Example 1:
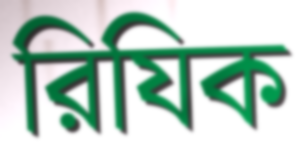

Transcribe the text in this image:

রিযিক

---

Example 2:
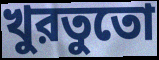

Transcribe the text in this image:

খুরতুতো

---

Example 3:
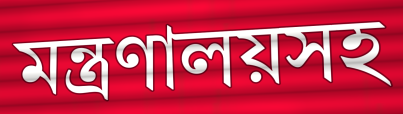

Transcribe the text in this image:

মন্ত্রণালয়সহ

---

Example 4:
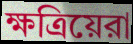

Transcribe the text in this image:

ক্ষত্রিয়েরা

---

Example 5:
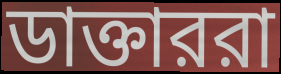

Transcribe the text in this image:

ডাক্তাররা